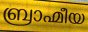
ബ്രാഹ്മീയ